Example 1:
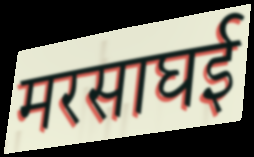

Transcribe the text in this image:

मरसाघई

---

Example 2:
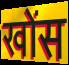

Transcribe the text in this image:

खोंस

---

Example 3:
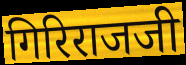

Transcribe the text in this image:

गिरिराजजी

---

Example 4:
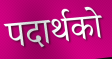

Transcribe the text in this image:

पदार्थको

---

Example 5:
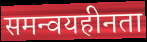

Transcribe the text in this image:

समन्वयहीनता